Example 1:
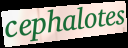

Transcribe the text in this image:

cephalotes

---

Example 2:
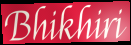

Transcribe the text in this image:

Bhikhiri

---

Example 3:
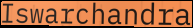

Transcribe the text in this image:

Iswarchandra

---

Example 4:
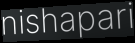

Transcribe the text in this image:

nishapari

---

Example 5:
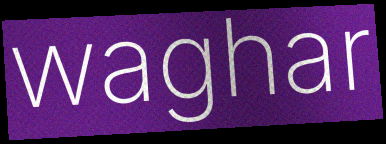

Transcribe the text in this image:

waghar